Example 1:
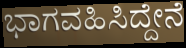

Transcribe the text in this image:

ಭಾಗವಹಿಸಿದ್ದೇನೆ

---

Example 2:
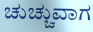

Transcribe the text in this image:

ಚುಚ್ಚುವಾಗ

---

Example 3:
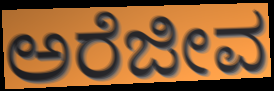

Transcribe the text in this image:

ಅರೆಜೀವ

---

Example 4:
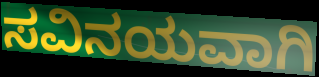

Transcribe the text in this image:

ಸವಿನಯವಾಗಿ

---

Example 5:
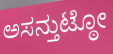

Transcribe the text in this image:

ಅಸನ್ತುಟ್ಠೋ